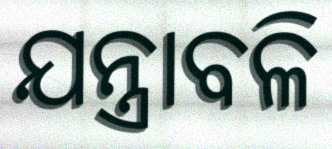
ଯନ୍ତ୍ରାବଳି